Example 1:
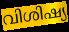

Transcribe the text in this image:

വിശിഷ്യ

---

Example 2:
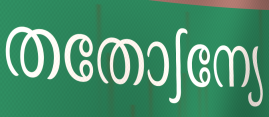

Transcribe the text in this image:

തതോഽന്യേ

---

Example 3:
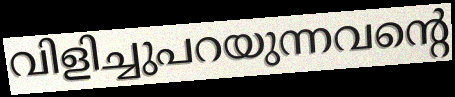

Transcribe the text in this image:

വിളിച്ചുപറയുന്നവന്റെ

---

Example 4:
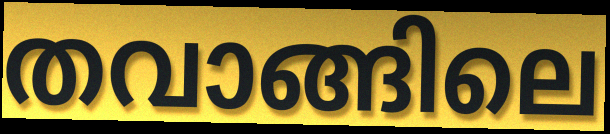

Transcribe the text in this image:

തവാങ്ങിലെ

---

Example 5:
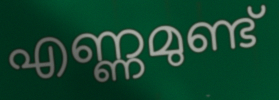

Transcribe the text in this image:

എണ്ണമുണ്ട്